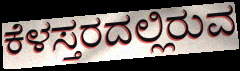
ಕೆಳಸ್ತರದಲ್ಲಿರುವ